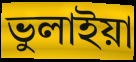
ভুলাইয়া